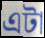
এটা